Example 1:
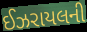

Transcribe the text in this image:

ઈઝરાયલની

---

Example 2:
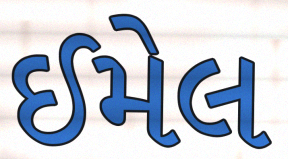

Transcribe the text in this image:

ઈમેલ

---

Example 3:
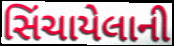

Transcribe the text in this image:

સિંચાયેલાની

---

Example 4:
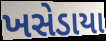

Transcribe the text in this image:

ખસેડાયા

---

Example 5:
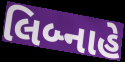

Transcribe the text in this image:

લિબ્નાહે